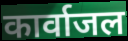
कार्वाजल